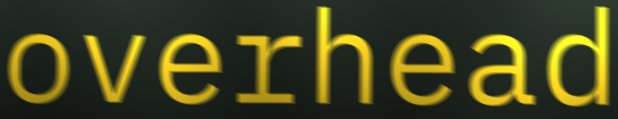
overhead